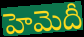
హెమెదీ